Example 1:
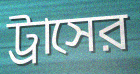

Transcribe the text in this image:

ট্রাসের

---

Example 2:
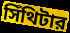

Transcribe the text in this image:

সিঁথিটার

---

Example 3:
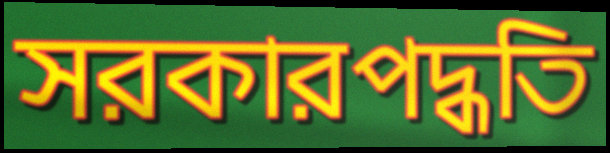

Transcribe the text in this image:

সরকারপদ্ধতি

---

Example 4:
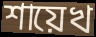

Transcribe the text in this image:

শায়েখ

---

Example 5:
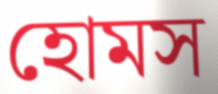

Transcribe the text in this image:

হোমস